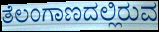
ತೆಲಂಗಾಣದಲ್ಲಿರುವ